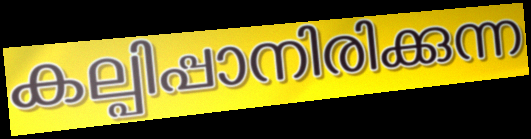
കല്പിപ്പാനിരിക്കുന്ന